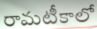
రామటీకాలో